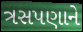
ત્રસપણાને